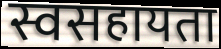
स्‍वसहायता